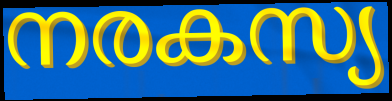
നരകസ്യ